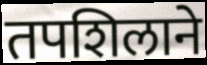
तपशिलाने